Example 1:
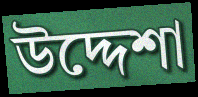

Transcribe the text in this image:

উদ্দেশা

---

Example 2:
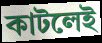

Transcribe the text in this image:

কাটলেই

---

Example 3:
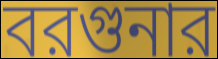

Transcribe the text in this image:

বরগুনার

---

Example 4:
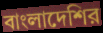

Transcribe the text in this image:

বাংলাদেশির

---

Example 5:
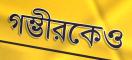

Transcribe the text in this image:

গম্ভীরকেও